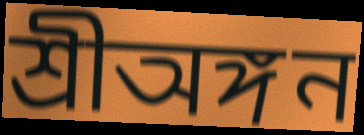
শ্রীঅঙ্গন